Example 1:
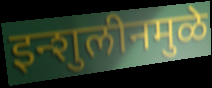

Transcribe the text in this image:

इन्शुलीनमुळे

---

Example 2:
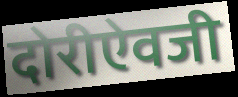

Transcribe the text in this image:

दोरीऐवजी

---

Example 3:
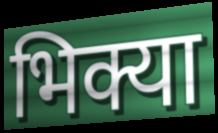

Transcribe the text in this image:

भिक्या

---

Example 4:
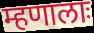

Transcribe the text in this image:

म्हणालाः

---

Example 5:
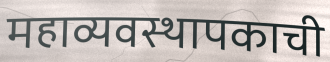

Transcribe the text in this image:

महाव्यवस्थापकाची